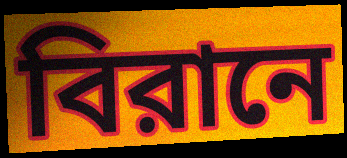
বিরানে